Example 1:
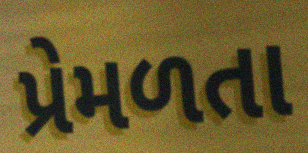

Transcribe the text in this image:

પ્રેમળતા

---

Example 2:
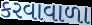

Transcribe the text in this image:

કરવાવાળા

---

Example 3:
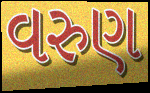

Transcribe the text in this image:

વરુણ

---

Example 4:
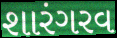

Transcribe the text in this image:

શારંગરવ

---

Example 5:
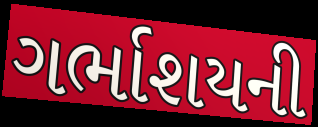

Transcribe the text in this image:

ગર્ભાશયની